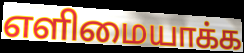
எளிமையாக்க